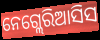
ନେଗ୍ଲେରିଆସିସ